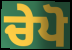
ਚੇਪੋ